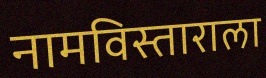
नामविस्ताराला